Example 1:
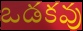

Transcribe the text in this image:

ఒడకవు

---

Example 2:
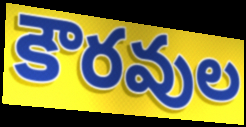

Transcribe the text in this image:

కౌరవుల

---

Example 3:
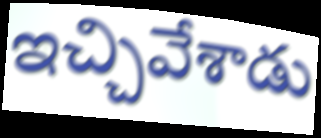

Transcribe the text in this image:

ఇచ్చివేశాడు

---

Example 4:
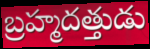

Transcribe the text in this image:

బ్రహ్మదత్తుడు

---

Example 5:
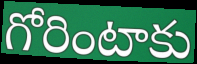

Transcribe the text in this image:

గోరింటాకు